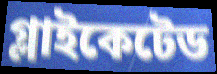
গ্লাইকেটেড